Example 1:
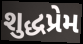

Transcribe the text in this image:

શુદ્ધપ્રેમ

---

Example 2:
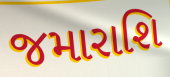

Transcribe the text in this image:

જમારાશિ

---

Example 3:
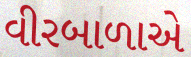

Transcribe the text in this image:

વીરબાળાએ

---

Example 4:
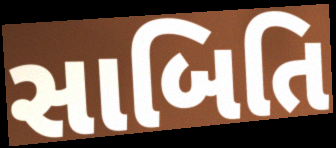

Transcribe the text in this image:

સાબિતિ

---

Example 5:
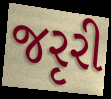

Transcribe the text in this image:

જરૃરી